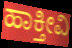
ಹಾಕ್ತೀವಿ